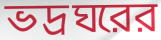
ভদ্রঘরের